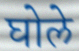
घोले